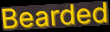
Bearded